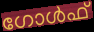
ഗോൾഫ്